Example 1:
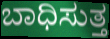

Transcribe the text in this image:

ಬಾಧಿಸುತ್ತ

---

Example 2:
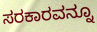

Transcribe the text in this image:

ಸರಕಾರವನ್ನೂ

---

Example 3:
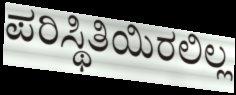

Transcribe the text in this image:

ಪರಿಸ್ಥಿತಿಯಿರಲಿಲ್ಲ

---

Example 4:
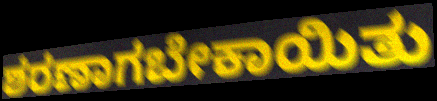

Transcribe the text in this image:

ಶರಣಾಗಬೇಕಾಯಿತು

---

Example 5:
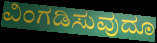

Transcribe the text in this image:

ವಿಂಗಡಿಸುವುದೂ